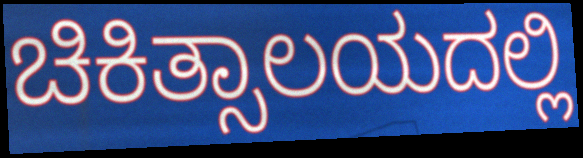
ಚಿಕಿತ್ಸಾಲಯದಲ್ಲಿ